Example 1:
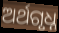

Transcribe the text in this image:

ଅର୍ଥଗୃଧ୍ନ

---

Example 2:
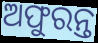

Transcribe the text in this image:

ଅଫୁରନ୍ତ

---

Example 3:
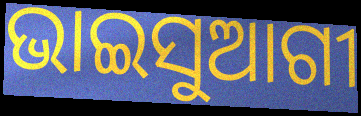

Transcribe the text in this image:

ଭାଇସୁଆଗୀ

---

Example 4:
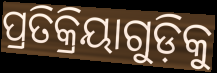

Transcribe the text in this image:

ପ୍ରତିକ୍ରିୟାଗୁଡ଼ିକୁ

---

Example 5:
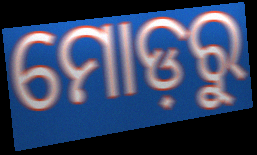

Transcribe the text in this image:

ମୋଡ଼ରୁ